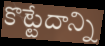
కొట్టేదాన్ని